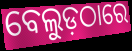
ବେଲୁଡ଼ଠାରେ